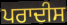
ਪਰਾਦੀਸ